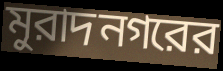
মুরাদনগরের